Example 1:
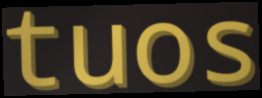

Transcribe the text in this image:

tuos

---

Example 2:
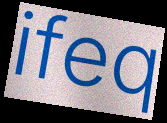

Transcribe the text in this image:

ifeq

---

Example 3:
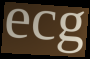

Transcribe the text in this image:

ecg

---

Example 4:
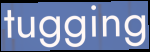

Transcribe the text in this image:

tugging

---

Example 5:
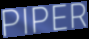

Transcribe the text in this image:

PIPER